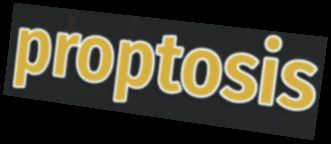
proptosis